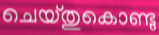
ചെയ്തുകൊണ്ടു